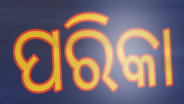
ପରିକା